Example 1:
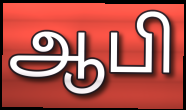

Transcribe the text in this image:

ஆபி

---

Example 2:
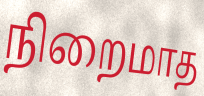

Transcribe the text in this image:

நிறைமாத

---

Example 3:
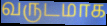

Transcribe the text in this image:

வருடமாக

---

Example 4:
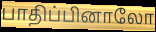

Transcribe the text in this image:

பாதிப்பினாலோ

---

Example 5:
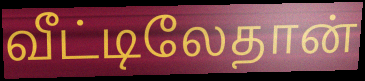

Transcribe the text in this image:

வீட்டிலேதான்